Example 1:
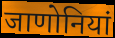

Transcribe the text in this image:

जाणोनियां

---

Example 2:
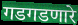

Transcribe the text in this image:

गडगडणारे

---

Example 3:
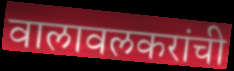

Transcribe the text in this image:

वालावलकरांची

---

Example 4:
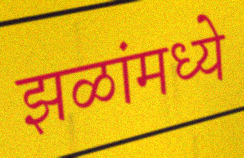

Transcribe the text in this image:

झळांमध्ये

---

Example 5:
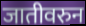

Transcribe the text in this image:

जातीवरुन